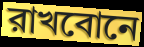
রাখবোনে